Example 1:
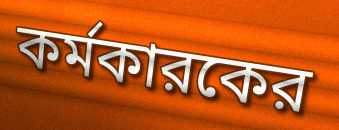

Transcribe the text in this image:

কর্মকারকের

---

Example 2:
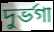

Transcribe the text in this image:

দুর্ভগা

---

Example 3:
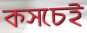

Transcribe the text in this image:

কসচেই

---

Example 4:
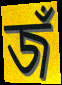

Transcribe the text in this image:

জঁ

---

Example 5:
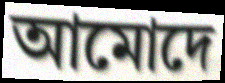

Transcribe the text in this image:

আমোদে